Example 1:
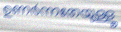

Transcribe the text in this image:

ഉണർന്നതേയുള്ളൂ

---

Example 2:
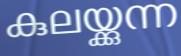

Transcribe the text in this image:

കുലയ്ക്കുന്ന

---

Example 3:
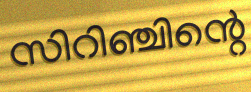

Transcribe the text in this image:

സിറിഞ്ചിന്റെ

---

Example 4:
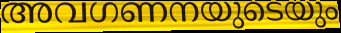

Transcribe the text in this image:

അവഗണനയുടെയും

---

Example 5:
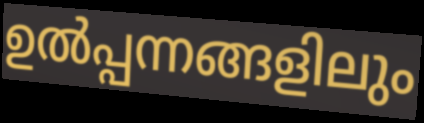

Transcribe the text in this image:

ഉൽപ്പന്നങ്ങളിലും